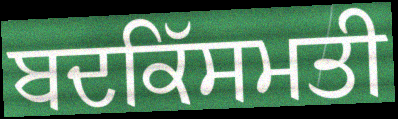
ਬਦਕਿੱਸਮਤੀ